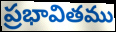
ప్రభావితము